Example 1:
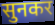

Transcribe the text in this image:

सुनकर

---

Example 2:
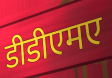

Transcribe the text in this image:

डीडीएमए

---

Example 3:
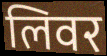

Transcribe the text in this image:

लिवर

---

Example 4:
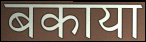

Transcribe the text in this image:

बकाया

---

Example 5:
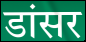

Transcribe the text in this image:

डांसर